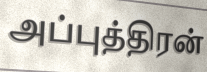
அப்புத்திரன்